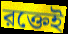
রক্তেই